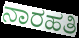
ನಾರಹತಿ